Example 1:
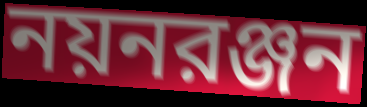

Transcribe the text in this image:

নয়নরঞ্জন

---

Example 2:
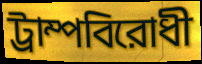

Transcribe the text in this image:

ট্রাম্পবিরোধী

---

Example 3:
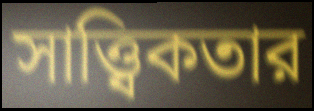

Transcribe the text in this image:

সাত্ত্বিকতার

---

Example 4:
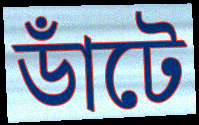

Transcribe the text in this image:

ডাঁটে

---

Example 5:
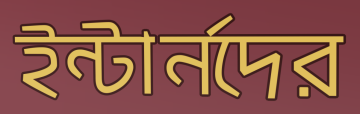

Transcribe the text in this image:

ইন্টার্নদের